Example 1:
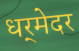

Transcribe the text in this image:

धर्मेदर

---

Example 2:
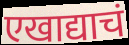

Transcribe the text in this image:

एखाद्याचं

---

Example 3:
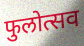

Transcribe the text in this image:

फुलोत्सव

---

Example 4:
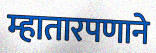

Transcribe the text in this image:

म्हातारपणाने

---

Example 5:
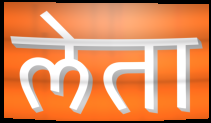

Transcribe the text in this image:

लेता